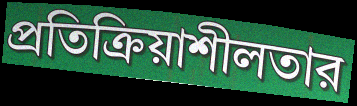
প্রতিক্রিয়াশীলতার